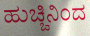
ಹುಚ್ಚಿನಿಂದ